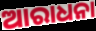
ଆରାଧନା